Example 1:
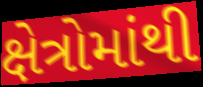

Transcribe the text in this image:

ક્ષેત્રોમાંથી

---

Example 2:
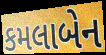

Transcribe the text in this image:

કમલાબેન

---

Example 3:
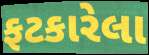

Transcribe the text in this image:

ફટકારેલા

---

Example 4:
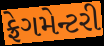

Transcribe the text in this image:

ફ્રેગમેન્ટરી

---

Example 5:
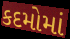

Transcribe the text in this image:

કદમોમાં